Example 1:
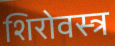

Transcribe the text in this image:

शिरोवस्त्र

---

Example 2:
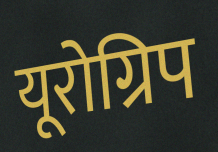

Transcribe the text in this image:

यूरोग्रिप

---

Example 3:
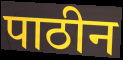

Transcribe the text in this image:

पाठीन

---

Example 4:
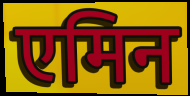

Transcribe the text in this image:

एमिन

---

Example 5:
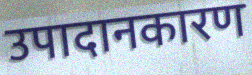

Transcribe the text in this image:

उपादानकारण